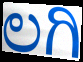
ಲಗಿ